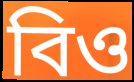
বিও